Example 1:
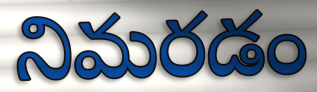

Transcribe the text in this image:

నిమరడం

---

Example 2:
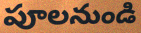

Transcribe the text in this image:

పూలనుండి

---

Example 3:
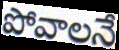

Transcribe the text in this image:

పోవాలనే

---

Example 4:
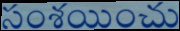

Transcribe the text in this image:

సంశయించు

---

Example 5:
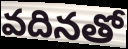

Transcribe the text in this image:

వదినతో